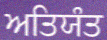
ਅਤਿਯੰਤ